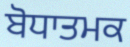
ਬੋਧਾਤਮਕ